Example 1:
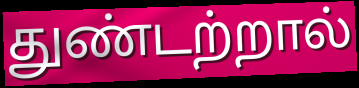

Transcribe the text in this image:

துண்டற்றால்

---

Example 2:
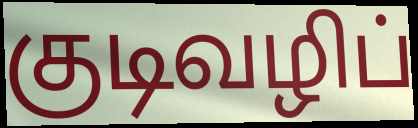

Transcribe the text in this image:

குடிவழிப்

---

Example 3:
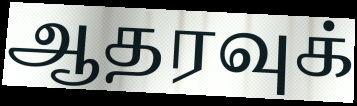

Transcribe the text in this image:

ஆதரவுக்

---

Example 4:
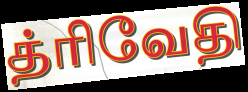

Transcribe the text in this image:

த்ரிவேதி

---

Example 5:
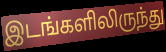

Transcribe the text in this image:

இடங்களிலிருந்து